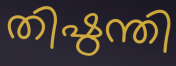
തിഷ്ഠന്തി